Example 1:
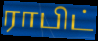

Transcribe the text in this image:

ராபிட்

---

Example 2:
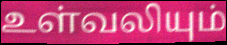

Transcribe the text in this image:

உள்வலியும்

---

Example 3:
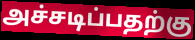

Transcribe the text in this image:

அச்சடிப்பதற்கு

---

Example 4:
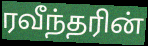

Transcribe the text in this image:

ரவீந்தரின்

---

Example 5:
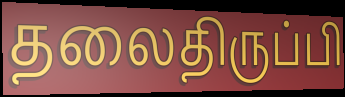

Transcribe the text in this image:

தலைதிருப்பி